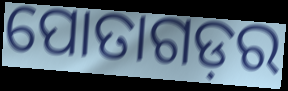
ପୋତାଗଡ଼ର